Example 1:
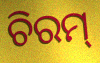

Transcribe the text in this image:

ଚିରମ୍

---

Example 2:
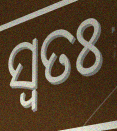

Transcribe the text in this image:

ସ୍ଵତଃ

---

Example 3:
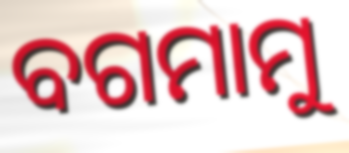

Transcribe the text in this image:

ବଗମାମୁ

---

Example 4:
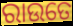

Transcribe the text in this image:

ରାଉତେ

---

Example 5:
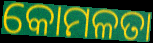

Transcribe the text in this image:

କୋମଳତା